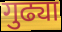
गुढ्या